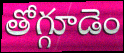
తోగ్గూడెం